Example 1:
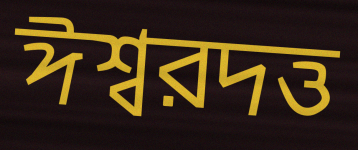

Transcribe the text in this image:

ঈশ্বরদত্ত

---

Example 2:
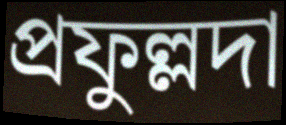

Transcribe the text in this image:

প্রফুল্লদা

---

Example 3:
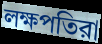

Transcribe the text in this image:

লক্ষপতিরা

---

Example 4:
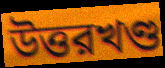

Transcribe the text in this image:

উত্তরখণ্ড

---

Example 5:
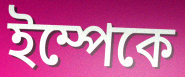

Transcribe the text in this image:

ইম্পেকে